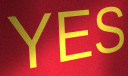
YES